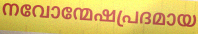
നവോന്മേഷപ്രദമായ